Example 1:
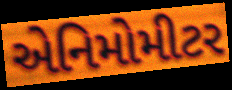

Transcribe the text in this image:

એનિમોમીટર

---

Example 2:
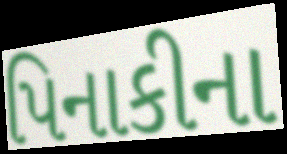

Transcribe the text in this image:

પિનાકીના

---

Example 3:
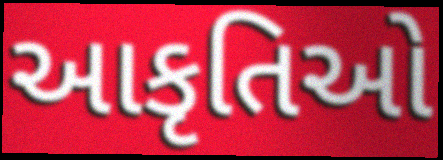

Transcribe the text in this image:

આકૃતિઓ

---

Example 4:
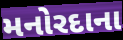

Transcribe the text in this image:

મનોરદાના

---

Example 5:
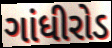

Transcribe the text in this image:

ગાંધીરોડ